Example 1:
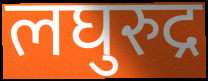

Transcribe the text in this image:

लघुरुद्र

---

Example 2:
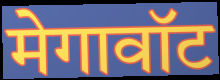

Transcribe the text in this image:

मेगावॉट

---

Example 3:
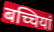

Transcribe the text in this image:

बच्चियां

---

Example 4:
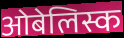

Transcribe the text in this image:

ओबेलिस्क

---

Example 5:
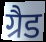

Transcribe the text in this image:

ग्रैड